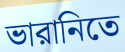
ভারানিতে